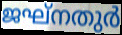
ജഘ്നതുർ